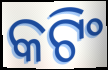
କଟିଂ